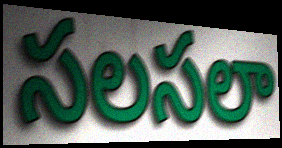
సలసలా